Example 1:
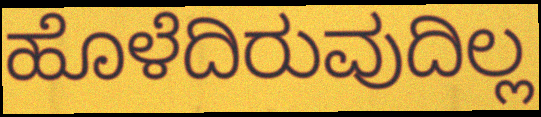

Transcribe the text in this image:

ಹೊಳೆದಿರುವುದಿಲ್ಲ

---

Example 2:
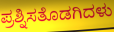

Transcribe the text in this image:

ಪ್ರಶ್ನಿಸತೊಡಗಿದಳು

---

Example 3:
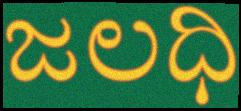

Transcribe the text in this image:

ಜಲಧಿ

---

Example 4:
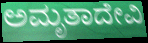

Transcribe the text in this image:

ಅಮೃತಾದೇವಿ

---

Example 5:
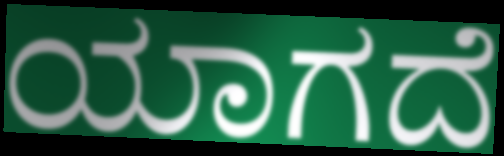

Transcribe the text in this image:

ಯಾಗದೆ